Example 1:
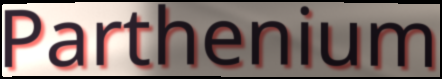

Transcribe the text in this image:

Parthenium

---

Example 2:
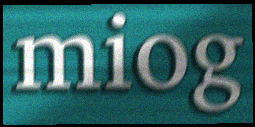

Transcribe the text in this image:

miog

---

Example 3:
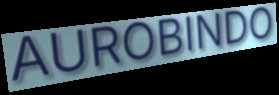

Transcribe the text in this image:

AUROBINDO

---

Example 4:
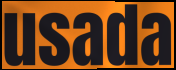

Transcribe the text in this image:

usada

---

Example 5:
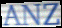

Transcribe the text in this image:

ANZ